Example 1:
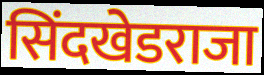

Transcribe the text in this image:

सिंदखेडराजा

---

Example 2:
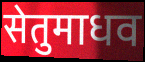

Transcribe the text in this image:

सेतुमाधव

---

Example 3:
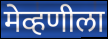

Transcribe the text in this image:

मेव्हणीला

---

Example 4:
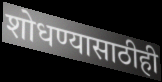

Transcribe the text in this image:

शोधण्यासाठीही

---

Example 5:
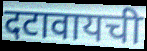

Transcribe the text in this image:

दटावायची